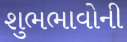
શુભભાવોની